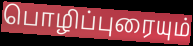
பொழிப்புரையும்